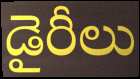
డైరీలు